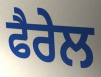
ਫੈਰੇਲ